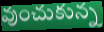
వుంచుకున్న